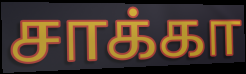
சாக்கா